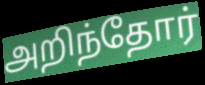
அறிந்தோர்